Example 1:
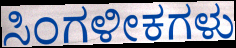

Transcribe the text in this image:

ಸಿಂಗಳೀಕಗಳು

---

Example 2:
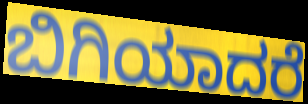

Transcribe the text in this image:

ಬಿಗಿಯಾದರೆ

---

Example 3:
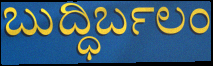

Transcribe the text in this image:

ಬುದ್ಧಿರ್ಬಲಂ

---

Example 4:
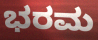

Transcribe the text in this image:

ಭರಮ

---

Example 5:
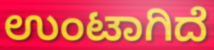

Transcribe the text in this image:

ಉಂಟಾಗಿದೆ